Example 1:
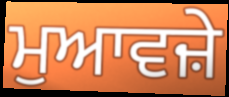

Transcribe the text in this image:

ਮੁਆਵਜ਼ੇ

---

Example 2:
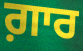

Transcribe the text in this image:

ਗ਼ਾਰ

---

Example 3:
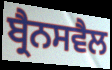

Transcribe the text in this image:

ਬ੍ਰੈਨਸਵੈਲ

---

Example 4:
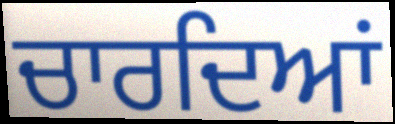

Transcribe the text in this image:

ਚਾਰਦਿਆਂ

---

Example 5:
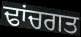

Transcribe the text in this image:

ਢਾਂਚਗਤ